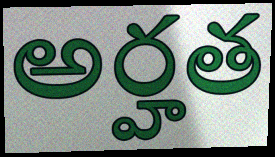
అర్హత